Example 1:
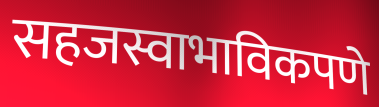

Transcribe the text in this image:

सहजस्वाभाविकपणे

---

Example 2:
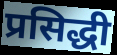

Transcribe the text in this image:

प्रसिद्धी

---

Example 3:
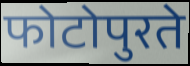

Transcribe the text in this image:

फोटोपुरते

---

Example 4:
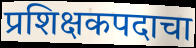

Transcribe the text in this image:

प्रशिक्षकपदाचा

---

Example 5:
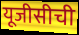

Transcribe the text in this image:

यूजीसीची